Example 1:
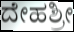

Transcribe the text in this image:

ದೇಹಶ್ರೀ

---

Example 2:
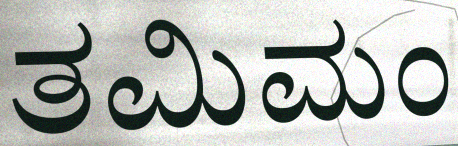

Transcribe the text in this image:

ತಮಿಮಂ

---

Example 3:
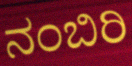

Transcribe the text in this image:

ನಂಬಿರಿ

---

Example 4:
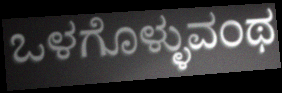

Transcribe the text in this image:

ಒಳಗೊಳ್ಳುವಂಥ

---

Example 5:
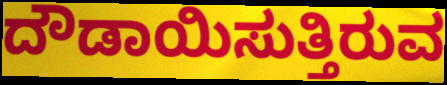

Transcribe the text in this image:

ದೌಡಾಯಿಸುತ್ತಿರುವ